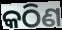
କଠିଣ